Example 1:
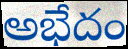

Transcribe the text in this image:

అభేదం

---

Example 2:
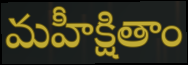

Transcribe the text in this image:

మహీక్షితాం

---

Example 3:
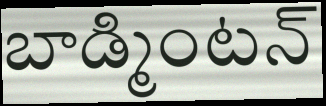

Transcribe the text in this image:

బాడ్మింటన్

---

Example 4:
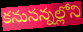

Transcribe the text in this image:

కనుసన్నల్లోని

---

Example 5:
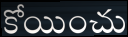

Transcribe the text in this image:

కోయించు